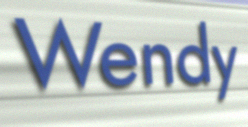
Wendy